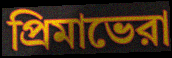
প্রিমাভেরা